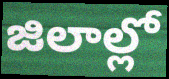
జిలాల్లో